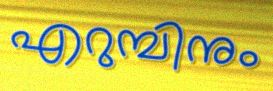
എറുമ്പിനും